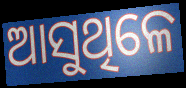
ଆସୁଥିଳେ